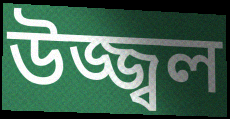
উজ্জ্বল